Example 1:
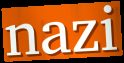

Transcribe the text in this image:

nazi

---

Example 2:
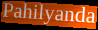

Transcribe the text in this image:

Pahilyanda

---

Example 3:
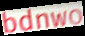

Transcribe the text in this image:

bdnwo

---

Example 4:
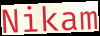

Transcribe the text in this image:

Nikam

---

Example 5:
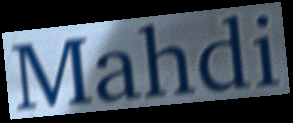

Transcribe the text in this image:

Mahdi